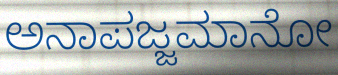
ಅನಾಪಜ್ಜಮಾನೋ